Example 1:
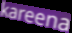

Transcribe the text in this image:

kareena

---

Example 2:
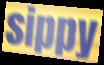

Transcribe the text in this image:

sippy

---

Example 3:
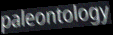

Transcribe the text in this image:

paleontology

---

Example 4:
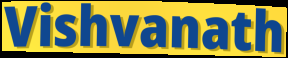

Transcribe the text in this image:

Vishvanath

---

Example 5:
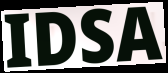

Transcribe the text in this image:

IDSA